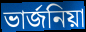
ভাৰ্জনিয়া